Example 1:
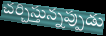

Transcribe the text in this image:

చర్చిస్తున్నప్పుడు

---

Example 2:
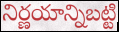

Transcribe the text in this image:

నిర్ణయాన్నిబట్టి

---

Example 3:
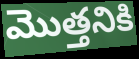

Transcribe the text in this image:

మొత్తనికి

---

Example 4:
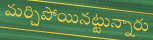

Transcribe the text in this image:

మర్చిపోయినట్టున్నారు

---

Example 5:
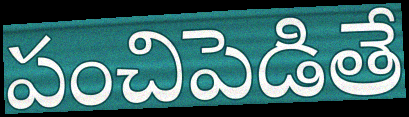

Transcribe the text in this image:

పంచిపెడితే